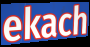
ekach